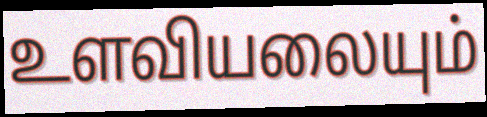
உளவியலையும்